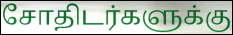
சோதிடர்களுக்கு